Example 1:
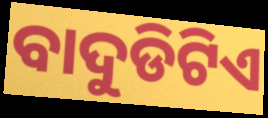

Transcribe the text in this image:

ବାଦୁଡିଟିଏ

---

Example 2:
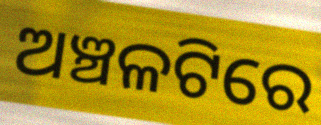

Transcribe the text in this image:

ଅଞ୍ଚଳଟିରେ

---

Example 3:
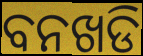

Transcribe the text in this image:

ବନଖଡି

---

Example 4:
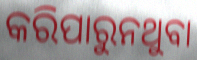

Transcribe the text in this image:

କରିପାରୁନଥୁବା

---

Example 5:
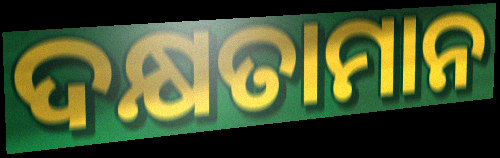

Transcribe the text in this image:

ଦକ୍ଷତାମାନ